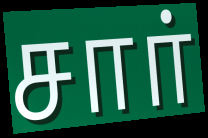
சார்